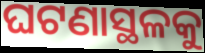
ଘଟଣାସ୍ଥଳକୁ